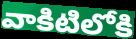
వాకిటిలోకి